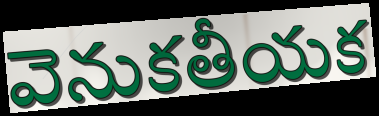
వెనుకతీయక